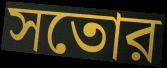
সতোর